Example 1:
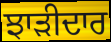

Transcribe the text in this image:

ਝਾੜੀਦਾਰ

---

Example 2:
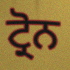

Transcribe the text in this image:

ਟ੍ਰੋਨ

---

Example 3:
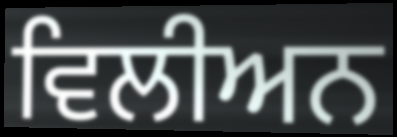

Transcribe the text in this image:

ਵਿਲੀਅਨ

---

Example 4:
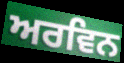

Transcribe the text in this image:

ਅਰਵਿਨ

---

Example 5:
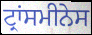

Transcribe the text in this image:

ਟ੍ਰਾਂਸਮੀਨੇਸ